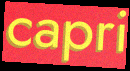
capri